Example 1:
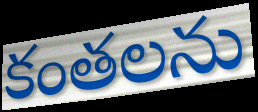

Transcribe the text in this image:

కంతలను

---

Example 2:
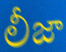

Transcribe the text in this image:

లీజా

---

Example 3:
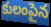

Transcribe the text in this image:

కులంపైన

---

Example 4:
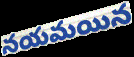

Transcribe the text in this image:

నయమయిన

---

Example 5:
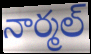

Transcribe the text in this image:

నార్మల్